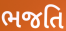
ભજતિ